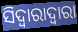
ସିଦ୍ୱାରାଦ୍ୱାରା